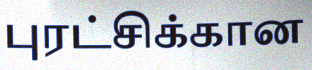
புரட்சிக்கான